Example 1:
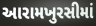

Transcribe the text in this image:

આરામખુરસીમાં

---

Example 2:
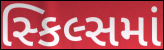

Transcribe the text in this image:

સ્કિલ્સમાં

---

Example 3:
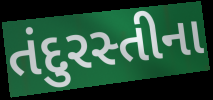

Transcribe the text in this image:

તંદુરસ્તીના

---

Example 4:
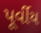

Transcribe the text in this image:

પૂર્વીય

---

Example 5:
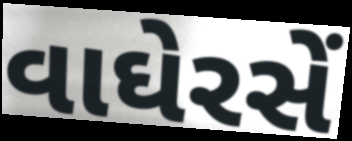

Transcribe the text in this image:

વાઘેરસેં